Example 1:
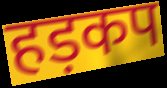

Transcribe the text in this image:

हड़कप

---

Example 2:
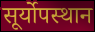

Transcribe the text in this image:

सूर्योपस्थान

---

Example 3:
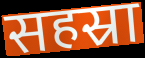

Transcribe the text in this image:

सहस्रा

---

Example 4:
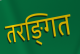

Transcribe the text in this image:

तरङ्गित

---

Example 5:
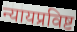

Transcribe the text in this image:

न्यायप्रविष्ट